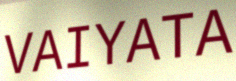
VAIYATA